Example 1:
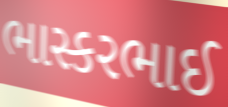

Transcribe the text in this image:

ભાસ્કરભાઈ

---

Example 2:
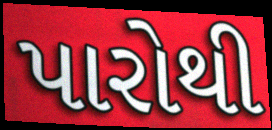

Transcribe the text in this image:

પારોથી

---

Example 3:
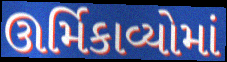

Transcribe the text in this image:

ઊર્મિકાવ્યોમાં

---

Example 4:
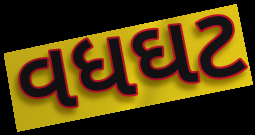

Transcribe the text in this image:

વધઘટ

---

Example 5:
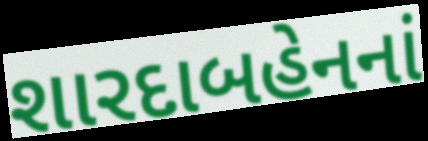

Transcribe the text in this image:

શારદાબહેનનાં